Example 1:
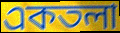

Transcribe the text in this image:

একতলা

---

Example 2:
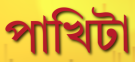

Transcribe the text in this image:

পাখিটা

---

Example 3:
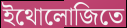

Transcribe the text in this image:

ইথোলোজিতে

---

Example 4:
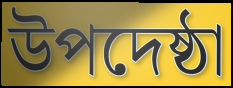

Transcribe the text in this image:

উপদেষ্ঠা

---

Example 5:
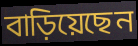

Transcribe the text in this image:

বাড়িয়েছেন